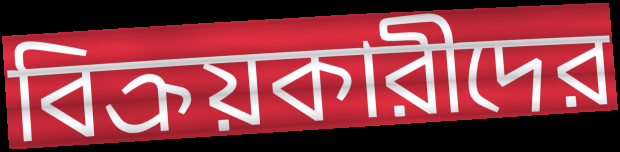
বিক্রয়কারীদের